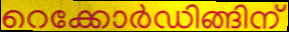
റെക്കോർഡിങ്ങിന്